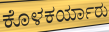
ಕೊಳಕರ್ಯಾರು